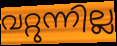
വറ്റുന്നില്ല